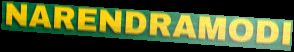
NARENDRAMODI